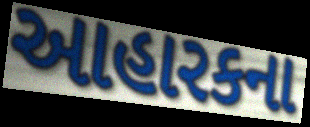
આહારકના